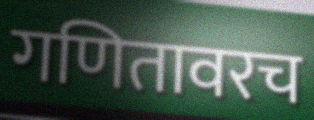
गणितावरच